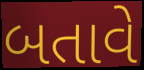
બતાવે